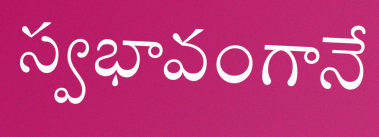
స్వభావంగానే